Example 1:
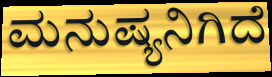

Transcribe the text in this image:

ಮನುಷ್ಯನಿಗಿದೆ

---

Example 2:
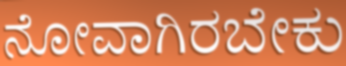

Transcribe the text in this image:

ನೋವಾಗಿರಬೇಕು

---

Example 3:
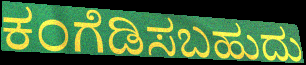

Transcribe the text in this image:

ಕಂಗೆಡಿಸಬಹುದು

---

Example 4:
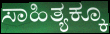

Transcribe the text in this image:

ಸಾಹಿತ್ಯಕ್ಕೂ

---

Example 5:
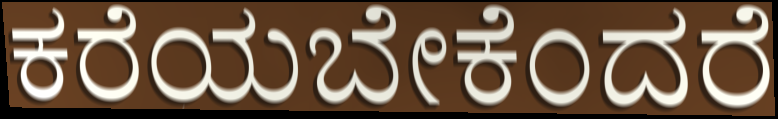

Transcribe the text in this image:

ಕರೆಯಬೇಕೆಂದರೆ